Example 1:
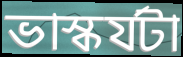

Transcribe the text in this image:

ভাস্কর্যটা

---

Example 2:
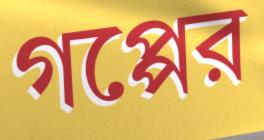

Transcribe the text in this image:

গপ্পের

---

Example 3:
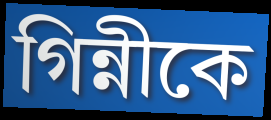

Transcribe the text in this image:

গিন্নীকে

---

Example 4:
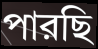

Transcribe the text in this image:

পারছি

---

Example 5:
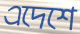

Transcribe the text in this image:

এদেশে